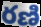
రణి